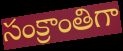
సంక్రాంతిగా